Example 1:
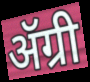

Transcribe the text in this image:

ॲग्री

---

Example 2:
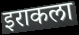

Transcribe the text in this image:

इराकला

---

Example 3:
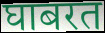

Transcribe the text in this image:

घाबरत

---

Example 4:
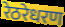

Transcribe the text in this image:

रेठरेधरण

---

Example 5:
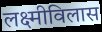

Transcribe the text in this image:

लक्ष्मीविलास